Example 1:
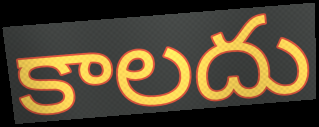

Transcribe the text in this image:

కాలదు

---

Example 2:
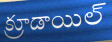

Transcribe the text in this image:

క్రూడాయిల్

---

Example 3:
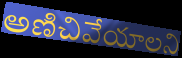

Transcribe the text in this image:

అణిచివేయాలని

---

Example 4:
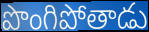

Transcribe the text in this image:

పొంగిపోతాడు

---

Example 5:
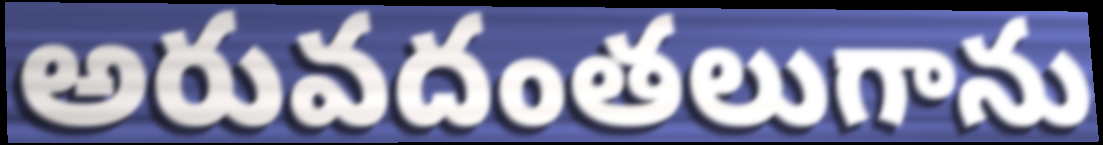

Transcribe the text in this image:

అరువదంతలుగాను